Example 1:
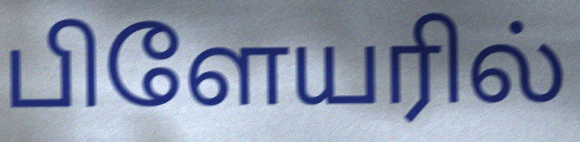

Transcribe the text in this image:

பிளேயரில்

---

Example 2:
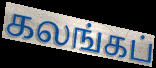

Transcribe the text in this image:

கலங்கப்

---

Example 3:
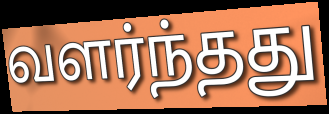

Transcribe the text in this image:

வளர்ந்தது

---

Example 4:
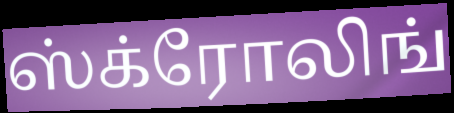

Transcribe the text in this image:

ஸ்க்ரோலிங்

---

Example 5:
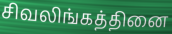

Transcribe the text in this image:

சிவலிங்கத்தினை